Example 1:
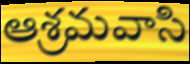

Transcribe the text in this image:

ఆశ్రమవాసి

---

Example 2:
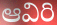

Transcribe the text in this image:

ఆవిరి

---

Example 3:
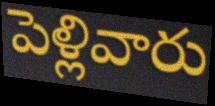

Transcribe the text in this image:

పెళ్లివారు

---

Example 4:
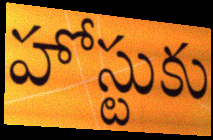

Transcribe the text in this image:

హోస్టుకు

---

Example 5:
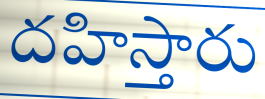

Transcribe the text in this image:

దహిస్తారు